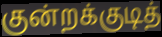
குன்றக்குடித்